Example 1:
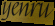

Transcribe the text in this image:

yenru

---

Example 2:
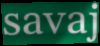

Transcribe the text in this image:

savaj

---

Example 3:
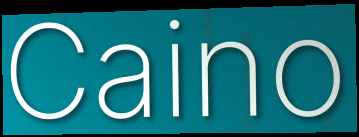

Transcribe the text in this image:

Caino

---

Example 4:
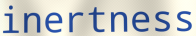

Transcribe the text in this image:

inertness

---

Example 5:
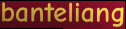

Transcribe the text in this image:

banteliang